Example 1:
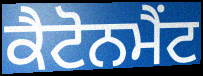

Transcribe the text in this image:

ਕੈਟੋਨਮੈਂਟ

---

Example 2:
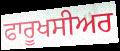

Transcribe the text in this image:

ਫਾਰੂਖਸੀਅਰ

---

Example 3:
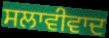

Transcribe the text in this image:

ਸਲਾਵੀਵਾਦ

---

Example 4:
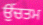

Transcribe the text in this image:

ਉੱਚਤਮ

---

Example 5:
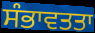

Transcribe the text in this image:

ਸੰਭਾਵਤਤਾ